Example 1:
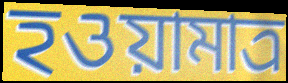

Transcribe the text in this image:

হওয়ামাত্র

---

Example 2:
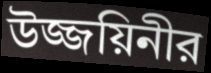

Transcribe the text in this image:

উজ্জয়িনীর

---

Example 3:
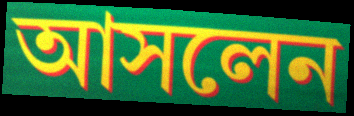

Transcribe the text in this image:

আসলেন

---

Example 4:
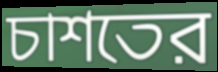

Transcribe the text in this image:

চাশতের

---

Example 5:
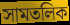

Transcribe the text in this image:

সামতলিক